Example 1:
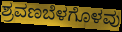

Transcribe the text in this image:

ಶ್ರವಣಬೆಳಗೊಳವು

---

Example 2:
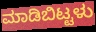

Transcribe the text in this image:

ಮಾಡಿಬಿಟ್ಟಳು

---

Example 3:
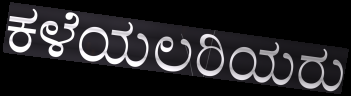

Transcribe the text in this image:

ಕಳೆಯಲರಿಯರು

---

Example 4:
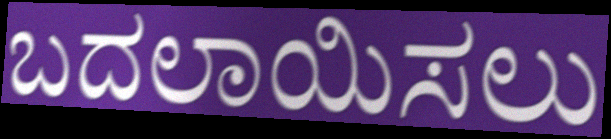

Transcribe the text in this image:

ಬದಲಾಯಿಸಲು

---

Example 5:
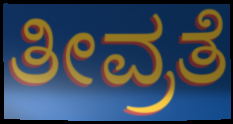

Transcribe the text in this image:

ತೀವ್ರತೆ